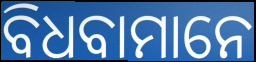
ବିଧବାମାନେ